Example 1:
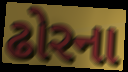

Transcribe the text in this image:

ઢોરના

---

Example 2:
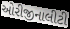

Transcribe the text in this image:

ઓરીજીનાલીટી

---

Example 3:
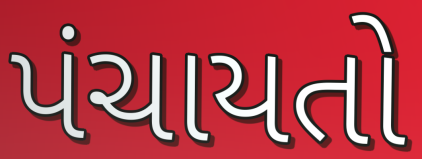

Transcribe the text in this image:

પંચાયતો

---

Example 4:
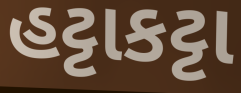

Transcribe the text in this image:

હટ્ટાકટ્ટા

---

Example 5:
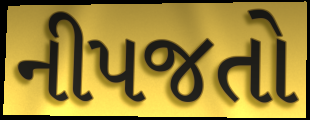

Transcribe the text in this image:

નીપજતો